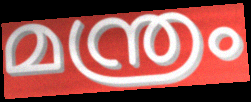
മന്ത്രം